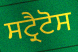
ਸਟ੍ਰੈਟੋਸ